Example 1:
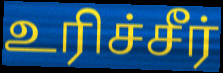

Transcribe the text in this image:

உரிச்சீர்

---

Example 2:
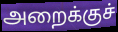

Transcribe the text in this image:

அறைக்குச்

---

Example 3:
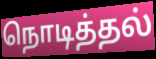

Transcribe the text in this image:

நொடித்தல்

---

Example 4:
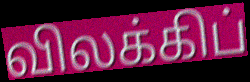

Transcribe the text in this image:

விலக்கிப்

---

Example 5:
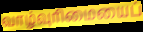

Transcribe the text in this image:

வாழ்வுரிமையைப்